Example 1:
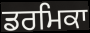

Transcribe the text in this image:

ਡਰਮਿਕਾ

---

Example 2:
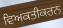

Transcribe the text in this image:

ਵਿਅਕਤੀਕਰਨ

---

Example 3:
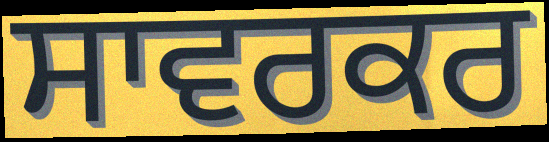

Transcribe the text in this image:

ਸਾਵਰਕਰ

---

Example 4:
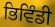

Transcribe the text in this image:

ਭਿਵਿੰਡੀ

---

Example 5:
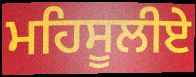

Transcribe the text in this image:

ਮਹਿਸੂਲੀਏ